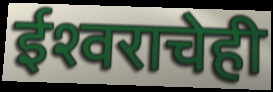
ईश्वराचेही